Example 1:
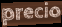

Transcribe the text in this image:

precio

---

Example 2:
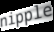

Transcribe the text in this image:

nipple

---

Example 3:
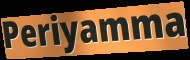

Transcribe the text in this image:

Periyamma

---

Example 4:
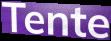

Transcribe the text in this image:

Tente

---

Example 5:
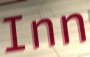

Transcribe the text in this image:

Inn